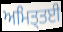
ਅਮਿਤ੍ਤਈ